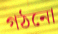
গঠনো